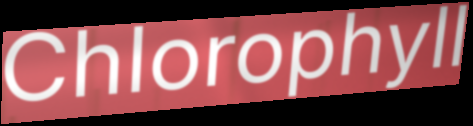
Chlorophyll